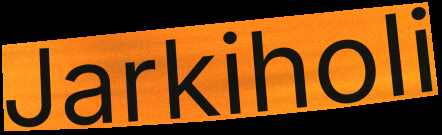
Jarkiholi